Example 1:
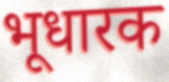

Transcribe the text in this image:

भूधारक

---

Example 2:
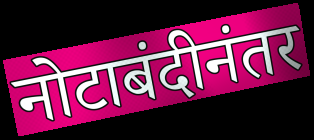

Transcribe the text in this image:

नोटाबंदीनंतर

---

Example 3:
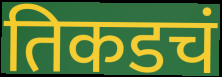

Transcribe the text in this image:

तिकडचं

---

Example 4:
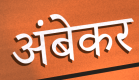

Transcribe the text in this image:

अंबेकर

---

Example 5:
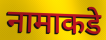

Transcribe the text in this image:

नामाकडे